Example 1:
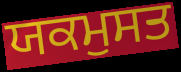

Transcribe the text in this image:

ਯਕਮੁਸਤ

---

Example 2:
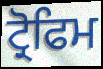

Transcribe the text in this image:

ਟ੍ਰੋਫਿਮ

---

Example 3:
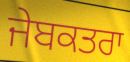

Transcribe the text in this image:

ਜੇਬਕਤਰਾ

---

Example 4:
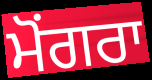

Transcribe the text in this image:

ਮੋਂਗਰਾ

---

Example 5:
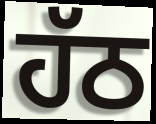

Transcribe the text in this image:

ਹੱਠ